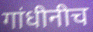
गांधीनीच